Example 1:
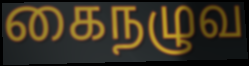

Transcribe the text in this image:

கைநழுவ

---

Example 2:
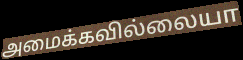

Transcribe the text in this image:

அமைக்கவில்லையா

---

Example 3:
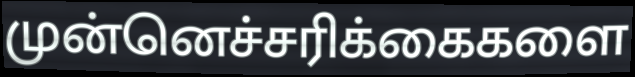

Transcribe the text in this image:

முன்னெச்சரிக்கைகளை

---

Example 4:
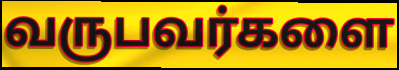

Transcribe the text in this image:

வருபவர்களை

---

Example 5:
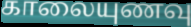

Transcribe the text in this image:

காலையுணவு